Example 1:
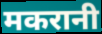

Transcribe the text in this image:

मकरानी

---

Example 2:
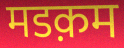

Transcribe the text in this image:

मडक़म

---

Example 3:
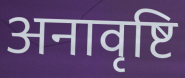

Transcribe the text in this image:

अनावृष्टि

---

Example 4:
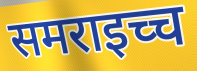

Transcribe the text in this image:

समराइच्च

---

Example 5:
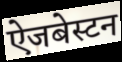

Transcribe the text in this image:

ऐजबेस्टन